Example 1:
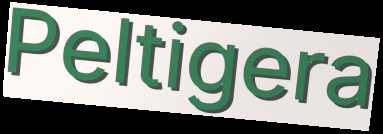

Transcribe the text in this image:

Peltigera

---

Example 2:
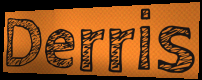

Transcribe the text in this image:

Derris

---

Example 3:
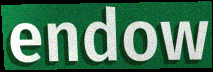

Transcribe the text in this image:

endow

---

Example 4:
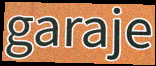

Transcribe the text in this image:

garaje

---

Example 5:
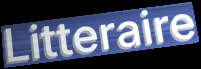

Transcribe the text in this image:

Litteraire